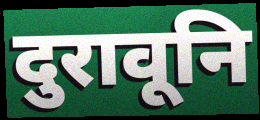
दुरावूनि